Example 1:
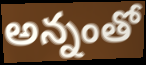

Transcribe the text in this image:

అన్నంతో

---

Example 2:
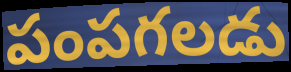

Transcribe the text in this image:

పంపగలడు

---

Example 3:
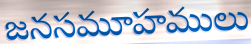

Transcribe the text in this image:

జనసమూహములు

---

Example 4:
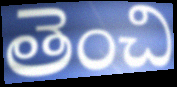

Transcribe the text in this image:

తెంచి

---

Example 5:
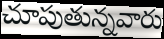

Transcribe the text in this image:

చూపుతున్నవారు